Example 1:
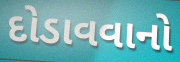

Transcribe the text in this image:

દોડાવવાનો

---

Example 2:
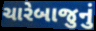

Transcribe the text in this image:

ચારેબાજુનું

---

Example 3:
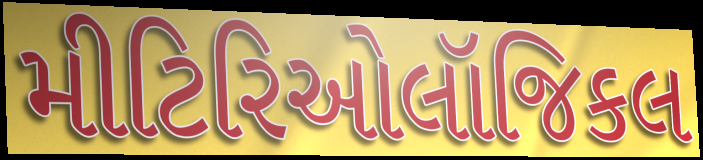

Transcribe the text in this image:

મીટિરિઓલૉજિકલ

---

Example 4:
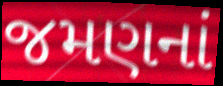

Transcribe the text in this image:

જમણનાં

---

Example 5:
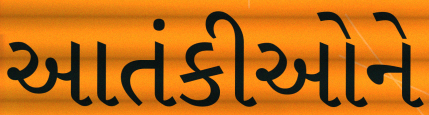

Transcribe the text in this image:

આતંકીઓને